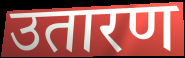
उतारण